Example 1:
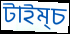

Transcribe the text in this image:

টাইম্‌চ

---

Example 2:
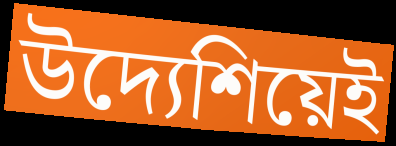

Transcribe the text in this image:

উদ্যেশিয়েই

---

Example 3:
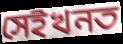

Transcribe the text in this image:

সেইখনত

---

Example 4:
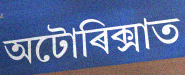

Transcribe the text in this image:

অটোৰিক্সাত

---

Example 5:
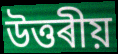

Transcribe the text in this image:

উত্তৰীয়